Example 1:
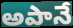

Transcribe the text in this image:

అపానే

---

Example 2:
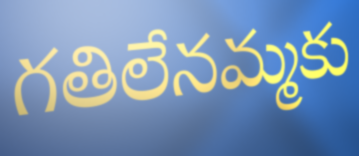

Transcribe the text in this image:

గతిలేనమ్మకు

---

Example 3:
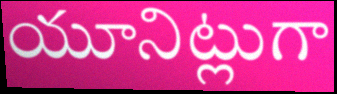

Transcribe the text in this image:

యూనిట్లుగా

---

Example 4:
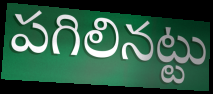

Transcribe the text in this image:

పగిలినట్టు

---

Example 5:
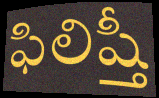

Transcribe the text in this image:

ఫిలిష్తీ